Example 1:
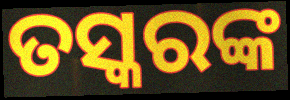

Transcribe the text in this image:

ତସ୍କରଙ୍କ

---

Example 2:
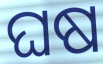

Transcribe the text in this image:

ଘଷ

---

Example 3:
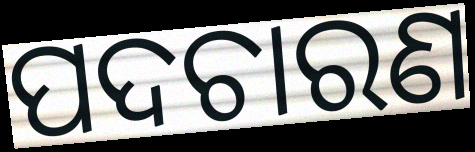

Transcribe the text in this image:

ପଦଚାରଣ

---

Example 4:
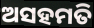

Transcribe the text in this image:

ଅସହମତି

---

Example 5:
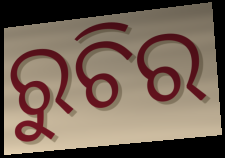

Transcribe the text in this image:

ରୁଚିର